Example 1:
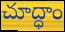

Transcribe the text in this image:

చూద్ధాం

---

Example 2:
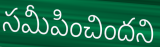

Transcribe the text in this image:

సమీపించిందని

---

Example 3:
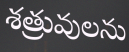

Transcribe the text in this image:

శత్రువులను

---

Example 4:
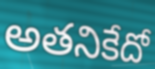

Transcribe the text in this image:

అతనికేదో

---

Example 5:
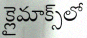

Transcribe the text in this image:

క్లైమాక్స్‌లో